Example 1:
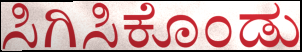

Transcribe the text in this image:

ಸಿಗಿಸಿಕೊಂಡು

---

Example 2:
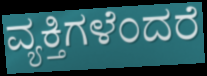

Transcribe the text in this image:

ವ್ಯಕ್ತಿಗಳೆಂದರೆ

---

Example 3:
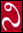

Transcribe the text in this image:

ನಿ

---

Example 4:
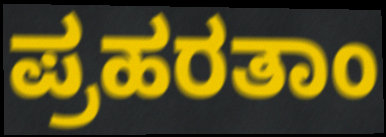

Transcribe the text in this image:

ಪ್ರಹರತಾಂ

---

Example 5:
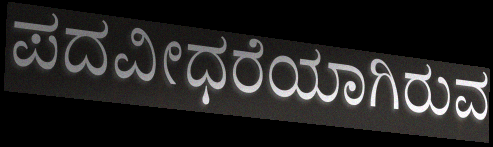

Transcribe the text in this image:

ಪದವೀಧರೆಯಾಗಿರುವ